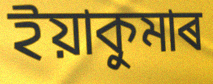
ইয়াকুমাৰ